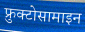
फ्रुक्टोसामाइन